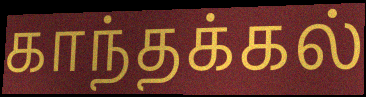
காந்தக்கல்